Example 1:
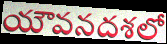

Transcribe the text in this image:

యౌవనదశలో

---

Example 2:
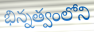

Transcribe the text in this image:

భిన్నత్వంలోని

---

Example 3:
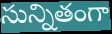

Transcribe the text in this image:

సున్నితంగా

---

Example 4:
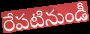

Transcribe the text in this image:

రేపటినుండీ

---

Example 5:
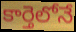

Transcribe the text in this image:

కార్తెలోనే